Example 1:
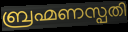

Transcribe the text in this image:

ബ്രഹ്മണസ്പതി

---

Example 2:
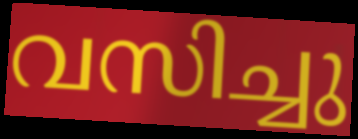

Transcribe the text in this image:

വസിച്ചു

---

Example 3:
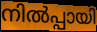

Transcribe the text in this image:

നിൽപ്പായി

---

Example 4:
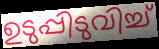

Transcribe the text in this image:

ഉടുപ്പിടുവിച്ച്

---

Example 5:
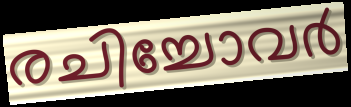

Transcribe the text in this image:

രചിച്ചോവർ